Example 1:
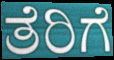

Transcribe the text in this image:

ತೆರಿಗೆ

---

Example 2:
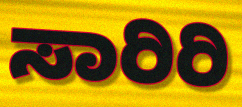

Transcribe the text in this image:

ಸಾರಿರಿ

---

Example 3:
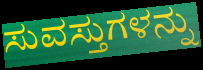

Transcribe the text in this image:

ಸುವಸ್ತುಗಳನ್ನು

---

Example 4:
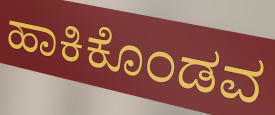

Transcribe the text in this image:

ಹಾಕಿಕೊಂಡವ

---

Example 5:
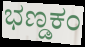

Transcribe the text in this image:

ಭಣ್ಡಕಂ